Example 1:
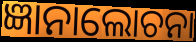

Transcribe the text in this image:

ଜ୍ଞାନାଲୋଚନା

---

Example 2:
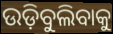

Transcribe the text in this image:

ଉଡ଼ିବୁଲିବାକୁ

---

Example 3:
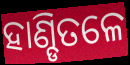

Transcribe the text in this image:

ହାଣ୍ଡିତଳେ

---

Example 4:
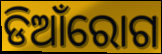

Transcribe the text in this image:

ଡିଆଁରୋଗ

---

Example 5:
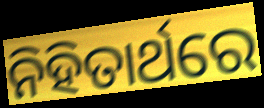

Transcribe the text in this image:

ନିହିତାର୍ଥରେ